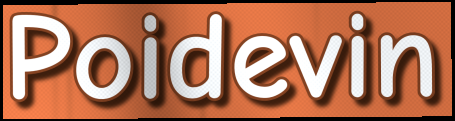
Poidevin